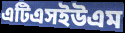
এটিএসইউএম